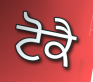
ਟੋਕੈ